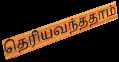
தெரியவந்ததாம்